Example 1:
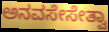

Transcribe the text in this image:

ಅನವಸೇಸೇತ್ವಾ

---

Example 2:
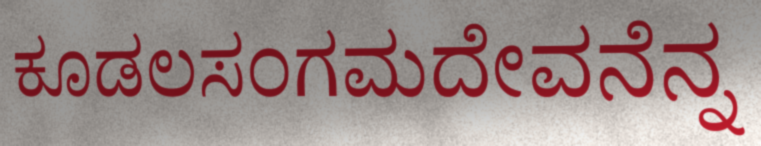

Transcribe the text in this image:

ಕೂಡಲಸಂಗಮದೇವನೆನ್ನ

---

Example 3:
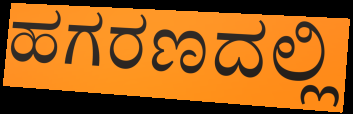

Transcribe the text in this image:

ಹಗರಣದಲ್ಲಿ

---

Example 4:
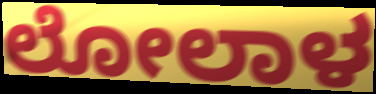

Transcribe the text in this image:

ಲೋಲಾಳ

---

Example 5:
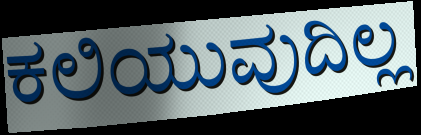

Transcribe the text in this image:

ಕಲಿಯುವುದಿಲ್ಲ